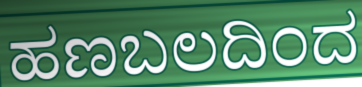
ಹಣಬಲದಿಂದ